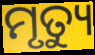
ମୃତ୍ୟୁ